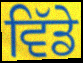
ਵਿੱਡੇ